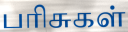
பரிசுகள்